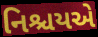
નિશ્ચયએ